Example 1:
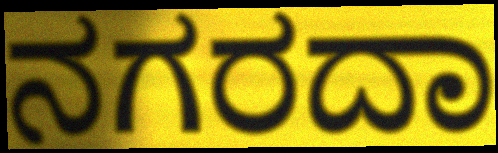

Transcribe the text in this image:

ನಗರದಾ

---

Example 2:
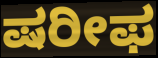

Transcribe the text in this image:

ಷರೀಫ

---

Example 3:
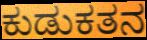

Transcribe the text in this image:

ಕುಡುಕತನ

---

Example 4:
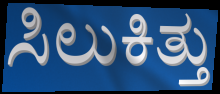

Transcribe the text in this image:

ಸಿಲುಕಿತ್ತು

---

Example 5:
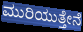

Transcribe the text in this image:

ಮುರಿಯುತ್ತೇನೆ